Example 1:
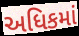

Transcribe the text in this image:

અધિકમાં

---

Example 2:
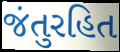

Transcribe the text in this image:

જંતુરહિત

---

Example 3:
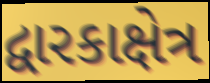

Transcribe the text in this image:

દ્વારકાક્ષેત્ર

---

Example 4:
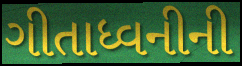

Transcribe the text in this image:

ગીતાધ્વનીની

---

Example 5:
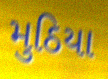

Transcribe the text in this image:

મુઠિયા